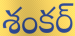
శంకర్